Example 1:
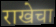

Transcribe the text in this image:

राखेचा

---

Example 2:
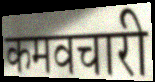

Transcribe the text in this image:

कमवचारी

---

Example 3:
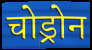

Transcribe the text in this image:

चोड्रोन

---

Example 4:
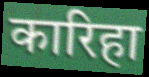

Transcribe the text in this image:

कारिहा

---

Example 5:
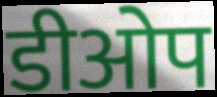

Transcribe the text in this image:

डीओप